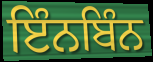
ਇੰਨਬਿੰਨ